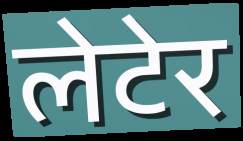
लेटेर